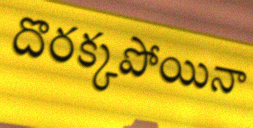
దొరక్కపోయినా